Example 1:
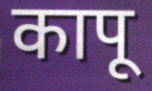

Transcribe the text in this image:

कापू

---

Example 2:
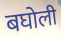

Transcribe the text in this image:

बघोली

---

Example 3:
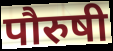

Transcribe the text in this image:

पौरुषी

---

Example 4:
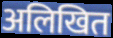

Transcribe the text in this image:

अलिखित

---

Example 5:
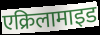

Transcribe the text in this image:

एक्रिलामाइड